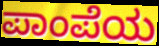
ಪಾಂಪೆಯ